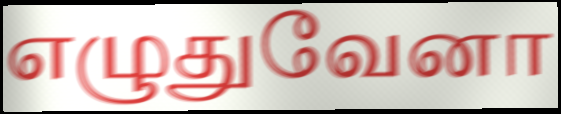
எழுதுவேனா